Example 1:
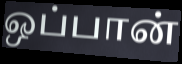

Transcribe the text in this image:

ஒப்பான்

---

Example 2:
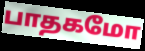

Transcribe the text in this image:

பாதகமோ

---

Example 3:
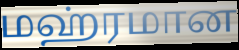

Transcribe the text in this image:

மஹ்ரமான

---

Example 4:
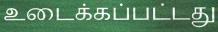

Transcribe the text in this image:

உடைக்கப்பட்டது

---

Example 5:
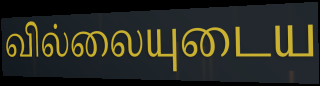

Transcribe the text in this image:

வில்லையுடைய